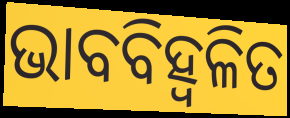
ଭାବବିହ୍ବଳିତ